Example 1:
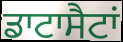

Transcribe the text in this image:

ਡਾਟਾਸੈਟਾਂ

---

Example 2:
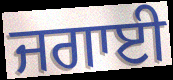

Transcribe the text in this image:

ਜਗਾਈ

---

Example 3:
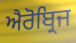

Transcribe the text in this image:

ਐਰੋਬ੍ਰਿਜ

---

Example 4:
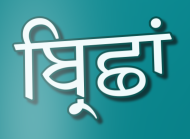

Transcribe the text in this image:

ਬ੍ਰਿਛਾਂ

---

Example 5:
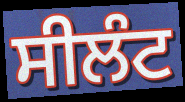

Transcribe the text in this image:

ਸੀਲੰਟ